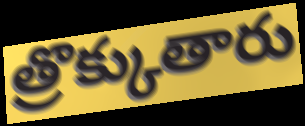
త్రొక్కుతారు